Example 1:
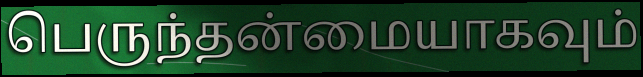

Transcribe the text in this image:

பெருந்தன்மையாகவும்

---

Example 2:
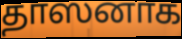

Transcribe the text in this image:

தாஸனாக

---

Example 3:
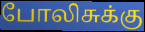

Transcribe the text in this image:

போலிசுக்கு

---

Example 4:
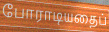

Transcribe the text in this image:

போராடியதைப்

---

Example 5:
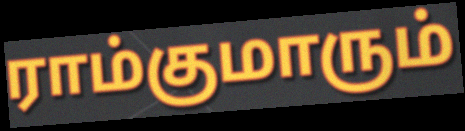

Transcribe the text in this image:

ராம்குமாரும்